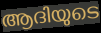
ആദിയുടെ